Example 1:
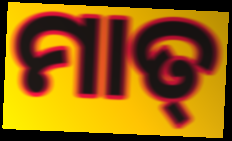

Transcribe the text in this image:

ମାତ୍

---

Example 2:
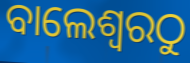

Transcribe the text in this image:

ବାଲେଶ୍ୱରଠୁ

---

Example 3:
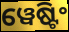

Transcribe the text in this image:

ୱେଷ୍ଟିଂ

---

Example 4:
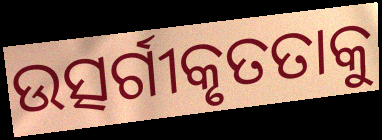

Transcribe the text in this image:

ଉତ୍ସର୍ଗୀକୃତତାକୁ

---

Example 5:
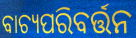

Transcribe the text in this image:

ବାଚ୍ୟପରିବର୍ତ୍ତନ